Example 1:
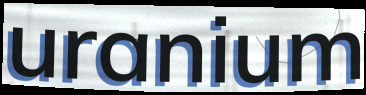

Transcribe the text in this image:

uranium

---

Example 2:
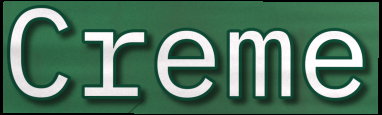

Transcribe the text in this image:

Creme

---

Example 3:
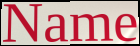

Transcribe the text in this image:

Name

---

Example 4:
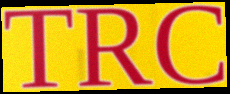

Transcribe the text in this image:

TRC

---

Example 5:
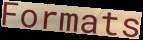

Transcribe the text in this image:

Formats